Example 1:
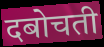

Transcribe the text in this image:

दबोचती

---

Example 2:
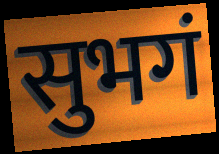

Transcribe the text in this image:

सुभगं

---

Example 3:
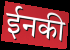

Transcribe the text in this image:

ईनकी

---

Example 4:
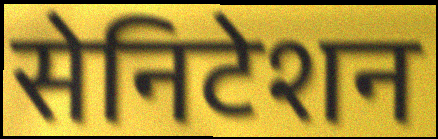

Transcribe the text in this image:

सेनिटेशन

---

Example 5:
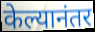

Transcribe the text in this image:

केल्यानंतर